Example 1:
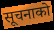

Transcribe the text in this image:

सूचनाको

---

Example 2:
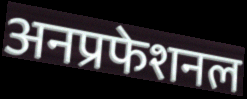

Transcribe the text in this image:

अनप्रफेशनल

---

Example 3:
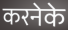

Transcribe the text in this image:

करनेके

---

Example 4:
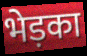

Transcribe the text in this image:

भेड़का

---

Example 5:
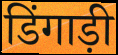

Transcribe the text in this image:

डिंगाड़ी